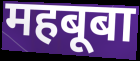
महबूबा